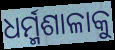
ଧର୍ମ୍ମଶାଳାକୁ